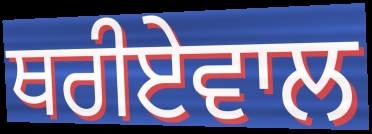
ਥਰੀਏਵਾਲ